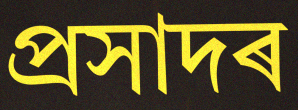
প্ৰসাদৰ